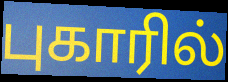
புகாரில்